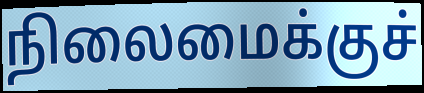
நிலைமைக்குச்